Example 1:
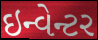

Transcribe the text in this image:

ઇન્વેન્ટર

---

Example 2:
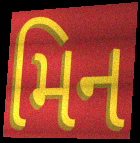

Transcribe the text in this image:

મિન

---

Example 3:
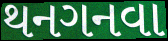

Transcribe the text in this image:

થનગનવા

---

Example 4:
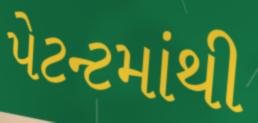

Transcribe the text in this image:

પેટન્ટમાંથી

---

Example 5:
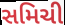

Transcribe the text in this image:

સમિચી